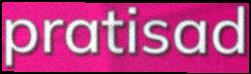
pratisad